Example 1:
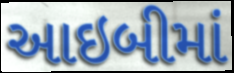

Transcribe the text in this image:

આઇબીમાં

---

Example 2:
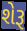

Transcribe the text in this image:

શેરૂ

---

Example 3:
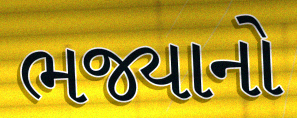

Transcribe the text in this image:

ભજ્યાનો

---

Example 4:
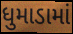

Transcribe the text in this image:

ધુમાડામાં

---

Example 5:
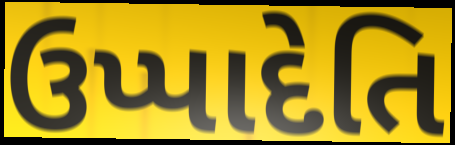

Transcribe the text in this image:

ઉપ્પાદેતિ